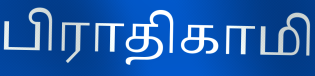
பிராதிகாமி